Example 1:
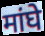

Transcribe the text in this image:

मांघे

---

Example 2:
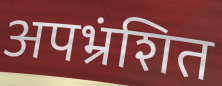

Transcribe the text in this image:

अपभ्रंशित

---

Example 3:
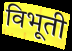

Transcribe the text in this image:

विभूती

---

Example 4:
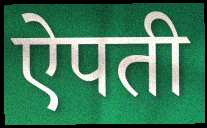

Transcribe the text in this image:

ऐपती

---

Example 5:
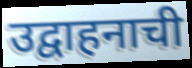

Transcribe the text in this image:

उद्वाहनाची